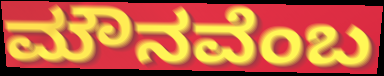
ಮೌನವೆಂಬ